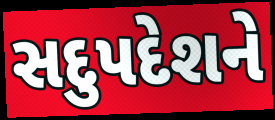
સદુપદેશને